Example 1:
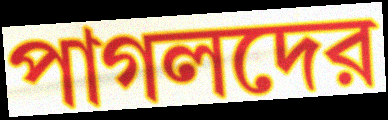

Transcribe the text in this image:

পাগলদের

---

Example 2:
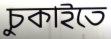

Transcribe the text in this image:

চুকাইতে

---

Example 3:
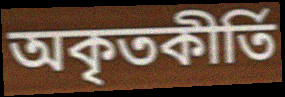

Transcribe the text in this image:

অকৃতকীর্তি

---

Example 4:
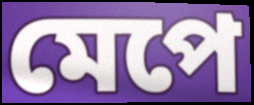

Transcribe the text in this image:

মেপে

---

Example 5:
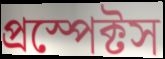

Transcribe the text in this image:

প্রস্পেক্টস